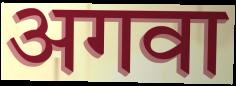
अगवा